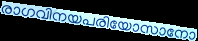
രാഗവിനയപരിയോസാനോ